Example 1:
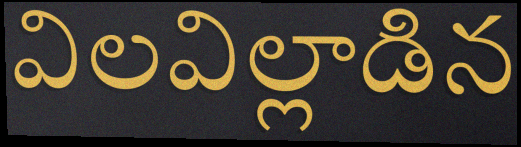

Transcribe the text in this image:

విలవిల్లాడిన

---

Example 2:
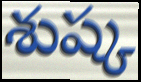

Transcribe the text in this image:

శుష్క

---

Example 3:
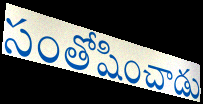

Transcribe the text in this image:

సంతోషించాడు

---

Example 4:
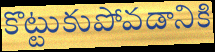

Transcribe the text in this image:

కొట్టుకుపోవడానికి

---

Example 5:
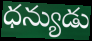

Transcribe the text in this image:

ధన్యుడు